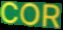
COR